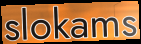
slokams